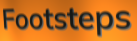
Footsteps